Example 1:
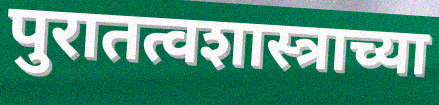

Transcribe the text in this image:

पुरातत्वशास्त्राच्या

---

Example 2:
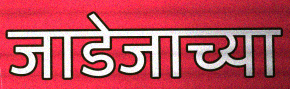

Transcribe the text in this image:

जाडेजाच्या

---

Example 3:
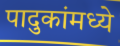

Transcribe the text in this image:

पादुकांमध्ये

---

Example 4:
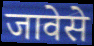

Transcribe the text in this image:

जावेसे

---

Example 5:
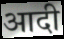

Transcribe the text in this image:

आदी